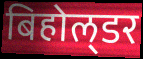
बिहोल्डर